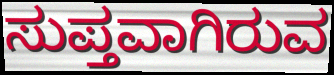
ಸುಪ್ತವಾಗಿರುವ